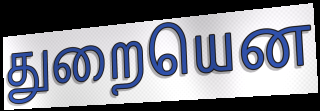
துறையென